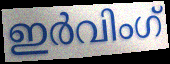
ഇർവിംഗ്